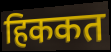
हिककत